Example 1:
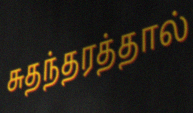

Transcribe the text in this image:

சுதந்தரத்தால்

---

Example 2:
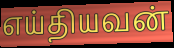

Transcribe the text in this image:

எய்தியவன்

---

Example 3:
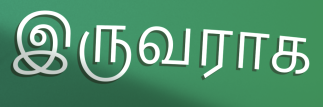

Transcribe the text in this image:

இருவராக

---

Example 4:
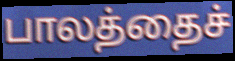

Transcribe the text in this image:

பாலத்தைச்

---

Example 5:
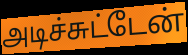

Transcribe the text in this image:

அடிச்சுட்டேன்